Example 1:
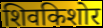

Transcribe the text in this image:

शिवकिशोर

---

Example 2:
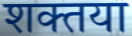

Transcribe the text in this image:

शक्तया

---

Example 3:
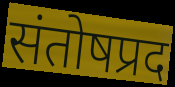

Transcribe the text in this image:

संतोषप्रद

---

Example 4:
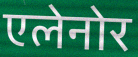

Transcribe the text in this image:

एलेनोर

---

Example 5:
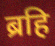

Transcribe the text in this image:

ब्रहि